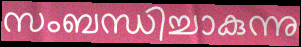
സംബന്ധിച്ചാകുന്നു